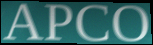
APCO